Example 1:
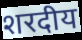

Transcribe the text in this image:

शरदीय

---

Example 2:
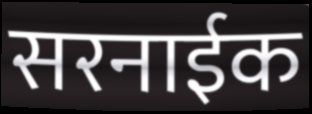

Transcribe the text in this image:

सरनाईक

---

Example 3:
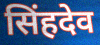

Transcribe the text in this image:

सिंहदेव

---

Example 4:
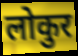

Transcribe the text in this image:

लोकुर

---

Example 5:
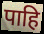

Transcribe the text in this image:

पाहि